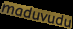
maduvudu